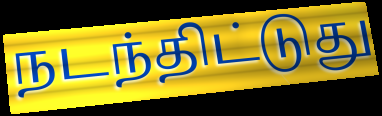
நடந்திட்டுது